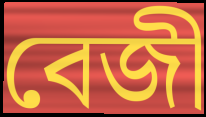
বেজী